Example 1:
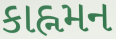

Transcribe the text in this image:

કાહ્નમન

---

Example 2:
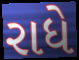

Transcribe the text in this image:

રાધે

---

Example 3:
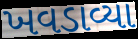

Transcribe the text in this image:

ખવડાવ્યા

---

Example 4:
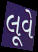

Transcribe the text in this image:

લૂવે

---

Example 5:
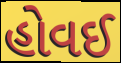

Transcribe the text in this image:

હોવઈ